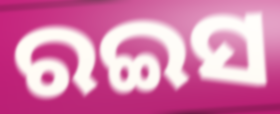
ରଇସ